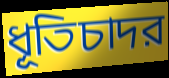
ধূতিচাদর